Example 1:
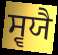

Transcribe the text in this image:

ਸ੍ਵਯੈ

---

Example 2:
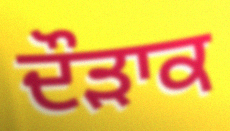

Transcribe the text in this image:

ਦੌੜਾਕ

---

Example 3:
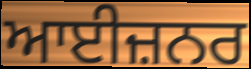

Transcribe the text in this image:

ਆਈਜ਼ਨਰ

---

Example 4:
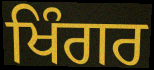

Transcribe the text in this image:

ਖਿੰਗਰ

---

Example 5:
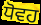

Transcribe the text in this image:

ਧੋਵਹ